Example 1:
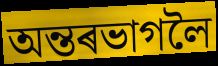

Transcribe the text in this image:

অন্তৰভাগলৈ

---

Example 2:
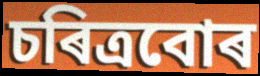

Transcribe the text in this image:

চৰিত্ৰবোৰ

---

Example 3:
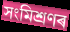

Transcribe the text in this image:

সংমিশ্ৰণৰ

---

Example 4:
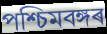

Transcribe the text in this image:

পশ্চিমবঙ্গৰ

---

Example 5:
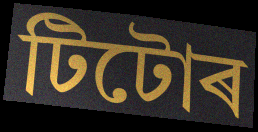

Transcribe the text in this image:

টিটোৰ